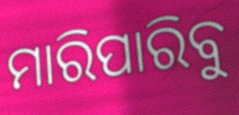
ମାରିପାରିବୁ